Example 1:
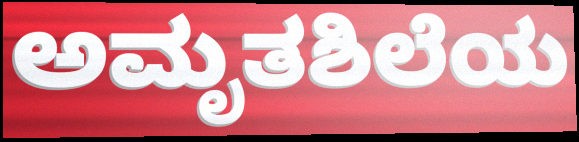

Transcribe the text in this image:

ಅಮೃತಶಿಲೆಯ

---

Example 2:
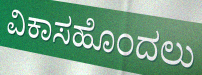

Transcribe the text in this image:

ವಿಕಾಸಹೊಂದಲು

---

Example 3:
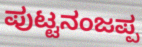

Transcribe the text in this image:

ಪುಟ್ಟನಂಜಪ್ಪ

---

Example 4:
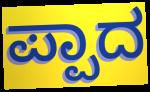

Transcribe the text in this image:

ಪ್ಪಾದ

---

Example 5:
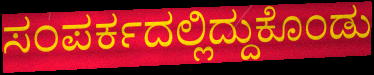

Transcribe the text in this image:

ಸಂಪರ್ಕದಲ್ಲಿದ್ದುಕೊಂಡು